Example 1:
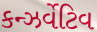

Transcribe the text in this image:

કન્ઝર્વેટિવ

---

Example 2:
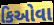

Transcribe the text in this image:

કિઓવા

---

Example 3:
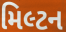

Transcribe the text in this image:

મિલ્ટન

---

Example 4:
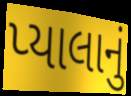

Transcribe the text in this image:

પ્યાલાનું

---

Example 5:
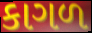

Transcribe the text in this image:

કાગળ